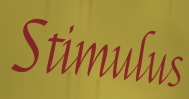
Stimulus